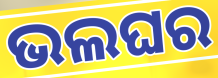
ଭଲଘର